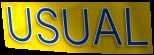
USUAL